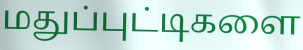
மதுப்புட்டிகளை